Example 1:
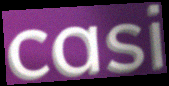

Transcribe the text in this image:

casi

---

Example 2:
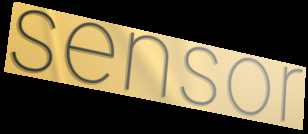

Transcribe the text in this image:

sensor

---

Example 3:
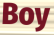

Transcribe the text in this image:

Boy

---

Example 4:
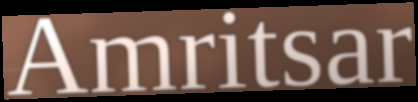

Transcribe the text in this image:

Amritsar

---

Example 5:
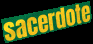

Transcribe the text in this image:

sacerdote